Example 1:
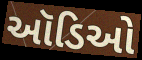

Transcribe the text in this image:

ઑડિઓ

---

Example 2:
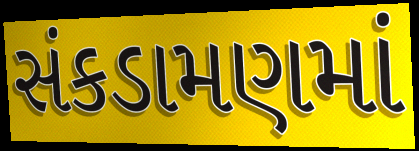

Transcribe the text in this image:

સંકડામણમાં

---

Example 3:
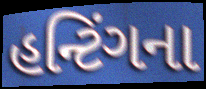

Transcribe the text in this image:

હન્ટિંગના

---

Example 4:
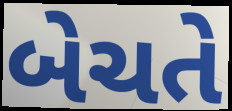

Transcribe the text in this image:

બેચતે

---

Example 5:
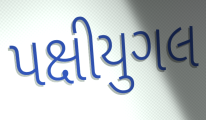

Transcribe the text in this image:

પક્ષીયુગલ